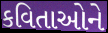
કવિતાઓને